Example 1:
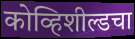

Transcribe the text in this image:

कोव्हिशील्डचा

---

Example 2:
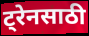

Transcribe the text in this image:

ट्रेनसाठी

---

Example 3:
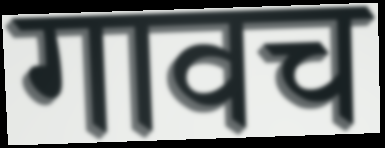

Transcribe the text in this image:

गावच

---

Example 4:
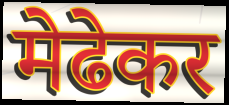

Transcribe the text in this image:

मेढेकर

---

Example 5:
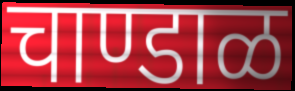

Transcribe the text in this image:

चाण्डाळ